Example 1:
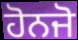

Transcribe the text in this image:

ਹੋਨਜੋ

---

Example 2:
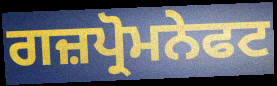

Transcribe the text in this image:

ਗਜ਼ਪ੍ਰੋਮਨੇਫਟ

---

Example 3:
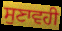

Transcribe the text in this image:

ਸੁਣਾਵਹੀ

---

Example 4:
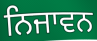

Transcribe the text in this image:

ਨਿਜਾਵਨ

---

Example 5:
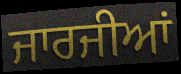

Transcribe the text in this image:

ਜਾਰਜੀਆਂ